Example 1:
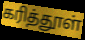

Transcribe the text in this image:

கரித்தூள்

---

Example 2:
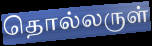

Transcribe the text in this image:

தொல்லருள்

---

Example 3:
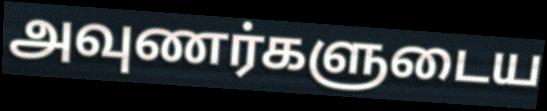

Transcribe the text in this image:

அவுணர்களுடைய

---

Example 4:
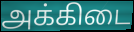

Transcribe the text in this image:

அக்கிடை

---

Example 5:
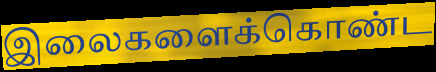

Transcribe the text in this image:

இலைகளைக்கொண்ட